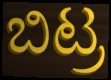
ಬಿಟ್ರ